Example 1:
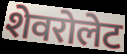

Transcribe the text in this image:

शेवरोलेट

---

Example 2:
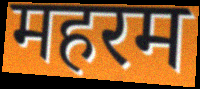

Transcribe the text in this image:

महरम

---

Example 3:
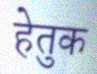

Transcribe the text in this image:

हेतुक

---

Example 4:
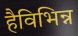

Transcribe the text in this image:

हैविभिन्न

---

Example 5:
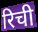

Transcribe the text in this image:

रिची